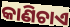
କାଣିଚାଏ